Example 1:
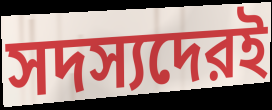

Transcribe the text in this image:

সদস্যদেরই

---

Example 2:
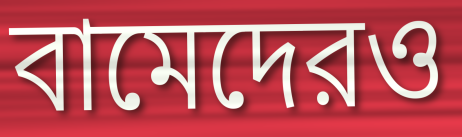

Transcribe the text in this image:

বামেদেরও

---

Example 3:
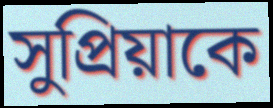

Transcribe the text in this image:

সুপ্রিয়াকে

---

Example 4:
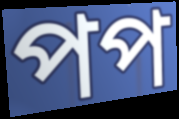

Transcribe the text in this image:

পপ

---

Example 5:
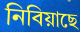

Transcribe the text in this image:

নিবিয়াছে